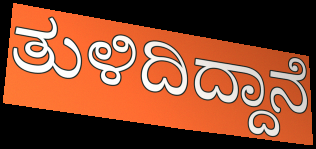
ತುಳಿದಿದ್ದಾನೆ